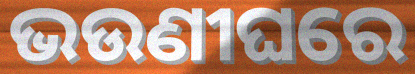
ଭଉଣୀଘରେ